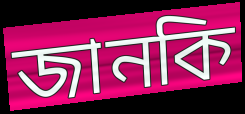
জানকি